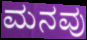
ಮನವು